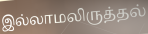
இல்லாமலிருத்தல்